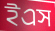
ইএস